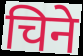
चिने